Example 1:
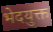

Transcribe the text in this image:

भेदयुक्त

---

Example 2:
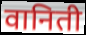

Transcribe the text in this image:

वानिती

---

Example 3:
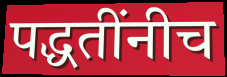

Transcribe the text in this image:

पद्धतींनीच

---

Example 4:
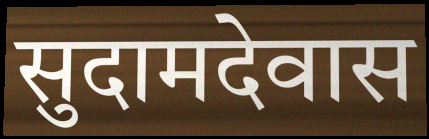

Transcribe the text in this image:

सुदामदेवास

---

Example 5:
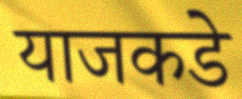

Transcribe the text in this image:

याजकडे